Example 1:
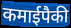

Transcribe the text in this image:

कमाईपैकी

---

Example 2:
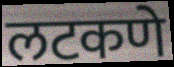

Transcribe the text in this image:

लटकणे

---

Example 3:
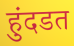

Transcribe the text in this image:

हुंदडत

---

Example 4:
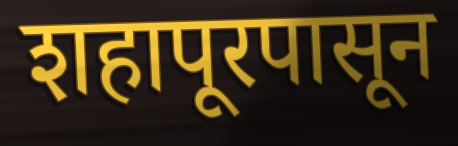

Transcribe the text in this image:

शहापूरपासून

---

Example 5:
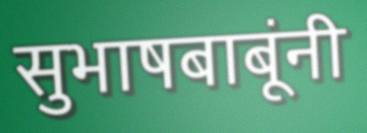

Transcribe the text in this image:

सुभाषबाबूंनी